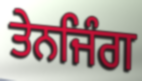
ਤੇਨਜਿੰਗ